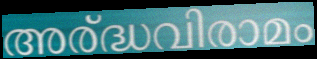
അര്ദ്ധവിരാമം